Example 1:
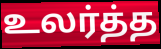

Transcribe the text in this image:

உலர்த்த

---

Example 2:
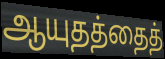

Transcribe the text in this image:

ஆயுதத்தைத்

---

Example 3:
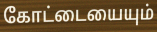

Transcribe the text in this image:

கோட்டையையும்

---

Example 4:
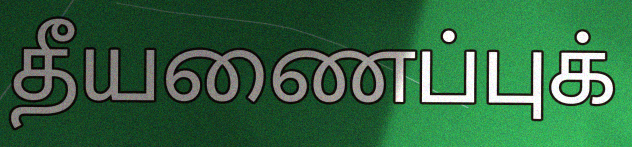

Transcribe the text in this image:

தீயணைப்புக்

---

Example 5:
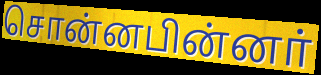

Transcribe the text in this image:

சொன்னபின்னர்